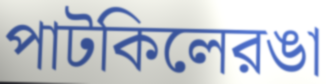
পাটকিলেরঙা